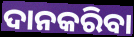
ଦାନକରିବା